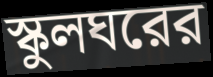
স্কুলঘরের